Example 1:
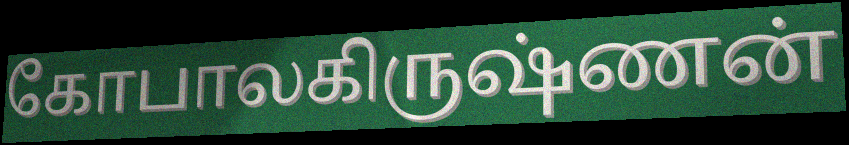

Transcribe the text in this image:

கோபாலகிருஷ்ணன்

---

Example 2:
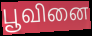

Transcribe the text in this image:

பூவினை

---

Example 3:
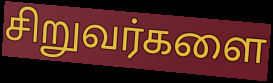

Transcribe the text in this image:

சிறுவர்களை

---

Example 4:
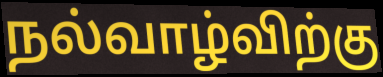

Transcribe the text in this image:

நல்வாழ்விற்கு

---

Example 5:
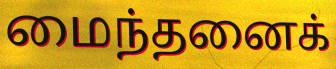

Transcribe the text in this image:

மைந்தனைக்